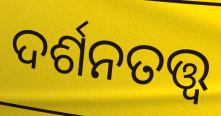
ଦର୍ଶନତତ୍ତ୍ଵ